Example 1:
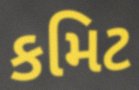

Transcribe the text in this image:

કમિટ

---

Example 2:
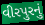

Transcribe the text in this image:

વીરપુરનું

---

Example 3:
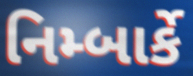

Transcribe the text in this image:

નિમ્બાર્કે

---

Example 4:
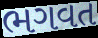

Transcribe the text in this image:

ભગવત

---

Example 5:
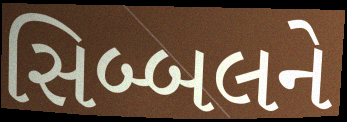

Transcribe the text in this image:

સિબ્બલને